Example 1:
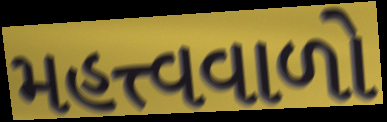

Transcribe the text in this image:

મહત્ત્વવાળો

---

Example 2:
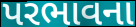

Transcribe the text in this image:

પરભાવના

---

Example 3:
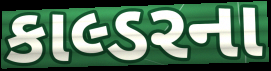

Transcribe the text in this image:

કાલ્ડરના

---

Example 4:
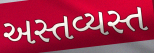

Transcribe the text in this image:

અસ્તવ્યસ્ત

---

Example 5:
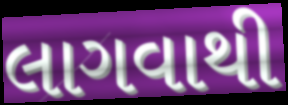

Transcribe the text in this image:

લાગવાથી